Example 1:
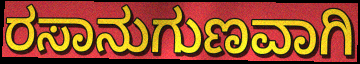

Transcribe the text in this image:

ರಸಾನುಗುಣವಾಗಿ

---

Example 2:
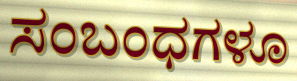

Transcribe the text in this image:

ಸಂಬಂಧಗಳೂ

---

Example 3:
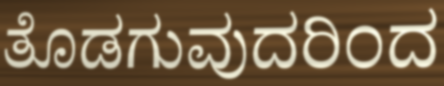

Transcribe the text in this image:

ತೊಡಗುವುದರಿಂದ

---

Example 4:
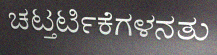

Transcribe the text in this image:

ಚಟ್ತರ್ಟಿಕೆಗಳನತು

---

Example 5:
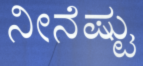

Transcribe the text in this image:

ನೀನೆಷ್ಟು